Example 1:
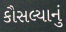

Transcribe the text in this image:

કૌસલ્યાનું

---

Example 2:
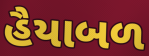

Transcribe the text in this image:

હૈયાબળ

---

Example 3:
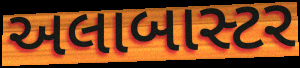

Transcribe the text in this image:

અલાબાસ્ટર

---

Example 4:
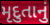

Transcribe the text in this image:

મૃદુતાનું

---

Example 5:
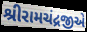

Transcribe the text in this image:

શ્રીરામચંદ્રજીએ